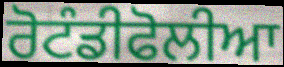
ਰੋਟੰਡੀਫੋਲੀਆ